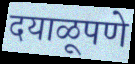
दयाळूपणे